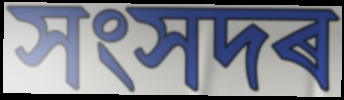
সংসদৰ